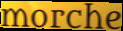
morche